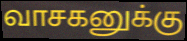
வாசகனுக்கு